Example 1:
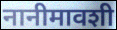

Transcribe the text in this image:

नानीमावशी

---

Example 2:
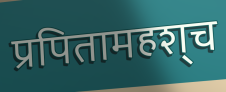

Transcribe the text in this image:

प्रपितामहश्च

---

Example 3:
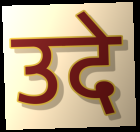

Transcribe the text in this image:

उदे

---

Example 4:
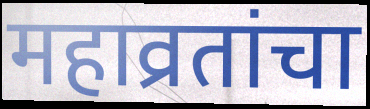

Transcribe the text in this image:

महाव्रतांचा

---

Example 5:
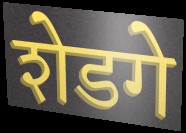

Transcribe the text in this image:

शेडगे